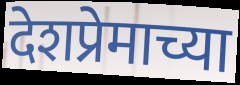
देशप्रेमाच्या